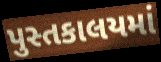
પુસ્તકાલયમાં